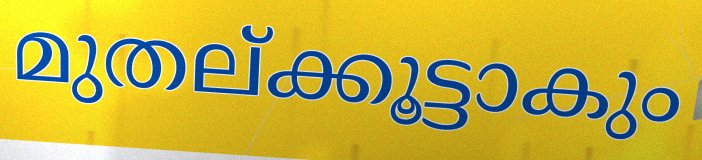
മുതല്ക്കൂട്ടാകും